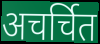
अचर्चित